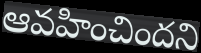
ఆవహించిందని